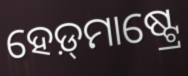
ହେଡ଼୍‌ମାଷ୍ଟ୍ରେ